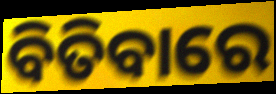
ବିତିବାରେ